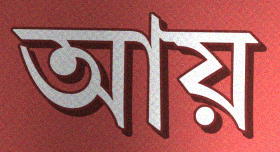
আয়